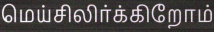
மெய்சிலிர்க்கிறோம்